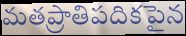
మతప్రాతిపదికపైన